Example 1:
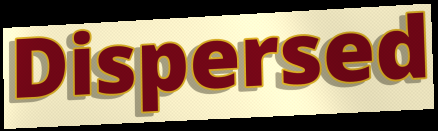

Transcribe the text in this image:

Dispersed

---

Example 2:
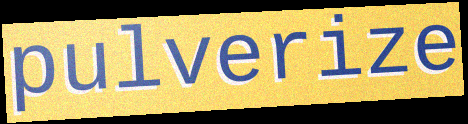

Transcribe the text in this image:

pulverize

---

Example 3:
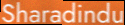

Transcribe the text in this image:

Sharadindu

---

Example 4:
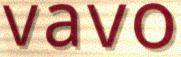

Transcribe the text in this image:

vavo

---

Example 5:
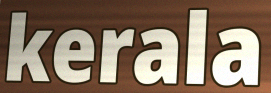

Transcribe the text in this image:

kerala